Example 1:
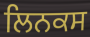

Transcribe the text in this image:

ਲਿਨਕਸ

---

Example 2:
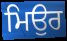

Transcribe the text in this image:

ਮਿਉਰ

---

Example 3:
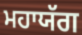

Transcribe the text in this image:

ਮਹਾਯੱਗ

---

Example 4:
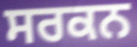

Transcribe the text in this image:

ਸਰਕਨ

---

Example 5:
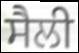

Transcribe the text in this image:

ਸੈਲੀ